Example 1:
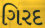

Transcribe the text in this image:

ગિરદ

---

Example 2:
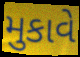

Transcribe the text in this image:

મુકાવે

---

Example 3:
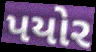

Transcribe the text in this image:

પયોર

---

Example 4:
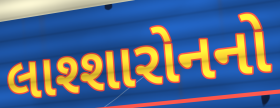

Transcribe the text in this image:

લાશ્શારોનનો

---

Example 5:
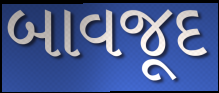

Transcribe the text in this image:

બાવજૂદ